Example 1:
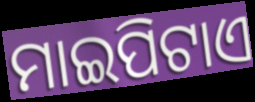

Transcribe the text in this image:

ମାଇପିଟାଏ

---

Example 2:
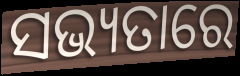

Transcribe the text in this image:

ସଭ୍ୟତାରେ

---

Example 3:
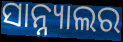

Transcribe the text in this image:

ସାନ୍ନ୍ୟାଲର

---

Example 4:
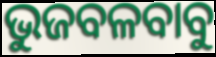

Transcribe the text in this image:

ଭୁଜବଳବାବୁ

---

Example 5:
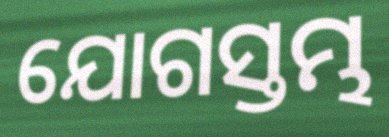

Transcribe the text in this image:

ଯୋଗସ୍ତମ୍ଭ